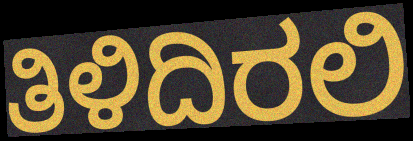
ತಿಳಿದಿರಲಿ